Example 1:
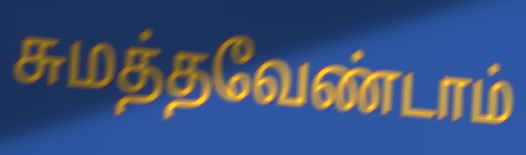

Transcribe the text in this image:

சுமத்தவேண்டாம்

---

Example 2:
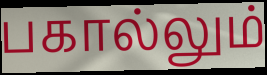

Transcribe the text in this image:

பகால்லும்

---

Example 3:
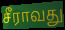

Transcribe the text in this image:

சீராவது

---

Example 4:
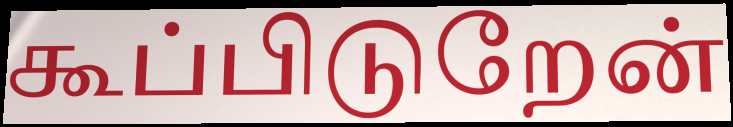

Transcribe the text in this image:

கூப்பிடுறேன்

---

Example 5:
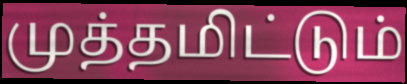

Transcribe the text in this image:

முத்தமிட்டும்